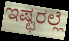
ಇಷ್ಟರಲ್ಲೆ